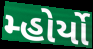
મ્હોર્યો